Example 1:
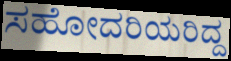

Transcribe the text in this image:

ಸಹೋದರಿಯರಿದ್ದ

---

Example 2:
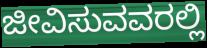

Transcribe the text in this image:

ಜೀವಿಸುವವರಲ್ಲಿ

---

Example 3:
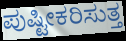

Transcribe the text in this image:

ಪುಷ್ಟೀಕರಿಸುತ್ತ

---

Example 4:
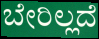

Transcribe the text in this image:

ಬೇರಿಲ್ಲದೆ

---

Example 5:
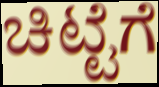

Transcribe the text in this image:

ಚಿಟ್ಟೆಗೆ